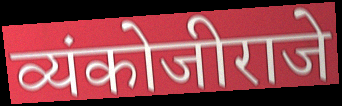
व्यंकोजीराजे